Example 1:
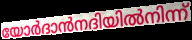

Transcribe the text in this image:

യോർദാൻനദിയിൽനിന്ന്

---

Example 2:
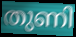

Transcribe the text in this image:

തുണി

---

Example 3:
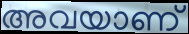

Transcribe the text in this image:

അവയാണ്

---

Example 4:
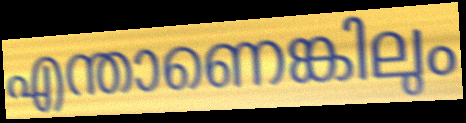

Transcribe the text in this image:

എന്താണെങ്കിലും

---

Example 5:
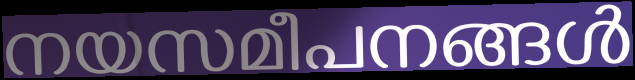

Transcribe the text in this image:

നയസമീപനങ്ങൾ